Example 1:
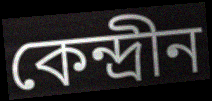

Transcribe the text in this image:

কেন্দ্রীন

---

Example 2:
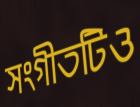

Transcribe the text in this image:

সংগীতটিও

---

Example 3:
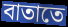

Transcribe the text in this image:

বাতাতে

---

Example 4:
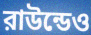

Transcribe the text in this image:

রাউন্ডেও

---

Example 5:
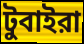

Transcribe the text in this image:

টুবাইরা